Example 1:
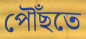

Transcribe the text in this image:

পৌঁছতে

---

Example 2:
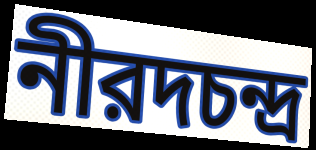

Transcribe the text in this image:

নীরদচন্দ্র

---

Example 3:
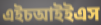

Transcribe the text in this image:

এইচআইইএস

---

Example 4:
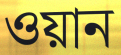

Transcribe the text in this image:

ওয়ান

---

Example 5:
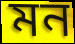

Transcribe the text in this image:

মন